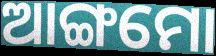
ଆଙ୍ଗମୋ